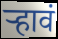
र्‍हावं